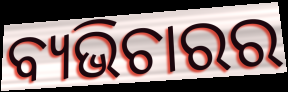
ବ୍ୟଭିଚାରର